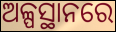
ଅଳ୍ପସ୍ଥାନରେ